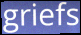
griefs